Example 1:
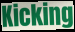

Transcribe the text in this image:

Kicking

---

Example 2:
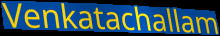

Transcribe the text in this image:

Venkatachallam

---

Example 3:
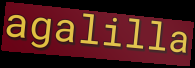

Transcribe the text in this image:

agalilla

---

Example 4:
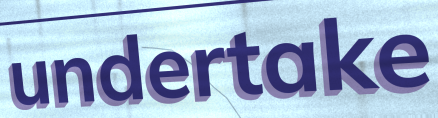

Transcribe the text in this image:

undertake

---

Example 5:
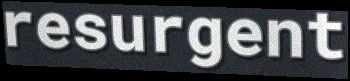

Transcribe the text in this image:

resurgent